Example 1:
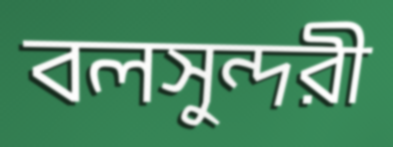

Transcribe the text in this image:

বলসুন্দরী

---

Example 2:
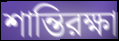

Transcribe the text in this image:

শান্তিরক্ষা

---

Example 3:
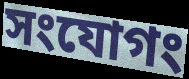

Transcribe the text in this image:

সংযোগং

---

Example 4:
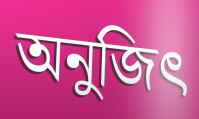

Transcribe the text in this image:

অনুজিৎ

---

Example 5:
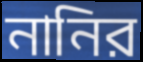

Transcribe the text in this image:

নানির